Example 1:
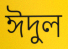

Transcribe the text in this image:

ঈদুল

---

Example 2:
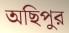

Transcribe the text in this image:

অছিপুর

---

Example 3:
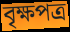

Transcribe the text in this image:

বৃক্ষপত্র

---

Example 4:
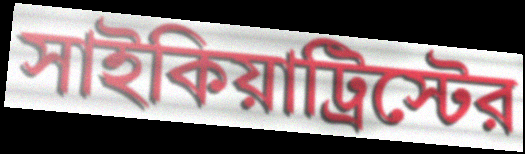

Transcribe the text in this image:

সাইকিয়াট্রিস্টের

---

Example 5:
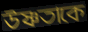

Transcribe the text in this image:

উষ্ণতাকে